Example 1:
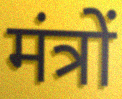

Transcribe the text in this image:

मंत्रों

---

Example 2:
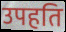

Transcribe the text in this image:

उपहति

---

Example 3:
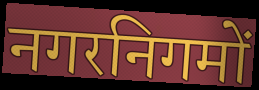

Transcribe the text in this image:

नगरनिगमों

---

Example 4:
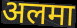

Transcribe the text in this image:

अलमा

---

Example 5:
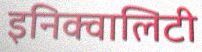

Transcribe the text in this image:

इनिक्वालिटी